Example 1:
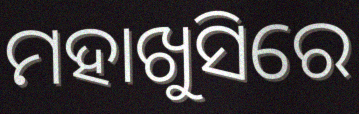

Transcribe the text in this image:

ମହାଖୁସିରେ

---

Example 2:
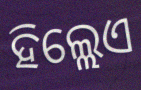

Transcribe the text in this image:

ହିଲ୍ଲେଏ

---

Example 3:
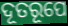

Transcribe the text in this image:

ଦୂତରୂପେ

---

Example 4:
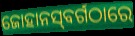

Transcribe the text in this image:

ଜୋହାନସ୍‌ବର୍ଗଠାରେ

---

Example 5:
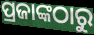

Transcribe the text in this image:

ପ୍ରଜାଙ୍କଠାରୁ